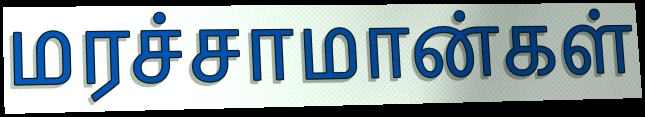
மரச்சாமான்கள்